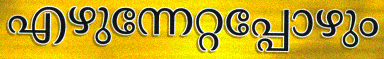
എഴുന്നേറ്റപ്പോഴും